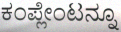
ಕಂಪ್ಲೇಂಟನ್ನೂ